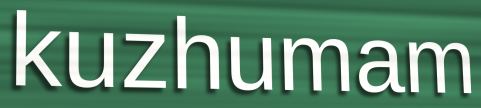
kuzhumam